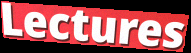
Lectures